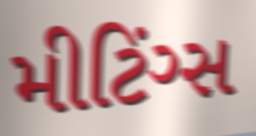
મીટિંગ્સ